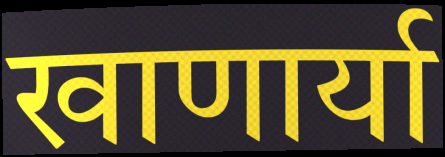
खाणार्या